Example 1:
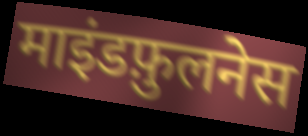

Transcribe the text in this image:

माइंडफ़ुलनेस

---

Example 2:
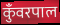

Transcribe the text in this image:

कुँवरपाल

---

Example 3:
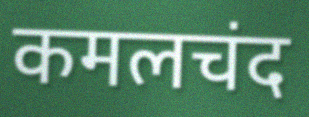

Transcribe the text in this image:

कमलचंद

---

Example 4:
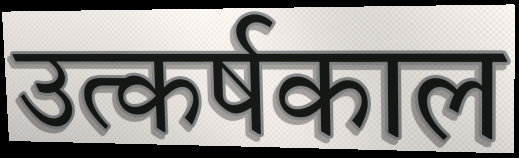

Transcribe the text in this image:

उत्कर्षकाल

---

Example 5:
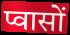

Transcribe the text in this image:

प्वासों